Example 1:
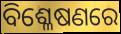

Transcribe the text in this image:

ବିଶ୍ଳେଷଣରେ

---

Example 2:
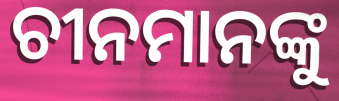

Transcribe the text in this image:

ଚୀନମାନଙ୍କୁ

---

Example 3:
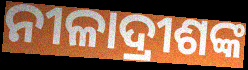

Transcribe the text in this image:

ନୀଳାଦ୍ରୀଶଙ୍କ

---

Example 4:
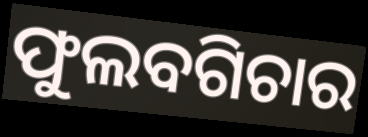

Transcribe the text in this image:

ଫୁଲବଗିଚାର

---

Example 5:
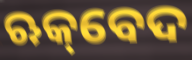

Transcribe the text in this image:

ଋକ୍‌ବେଦ